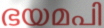
ഭയമപി